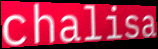
chalisa